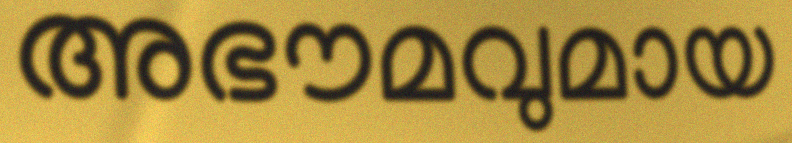
അഭൗമവുമായ